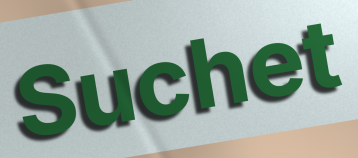
Suchet